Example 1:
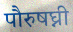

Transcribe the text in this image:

पौरुषघ्नी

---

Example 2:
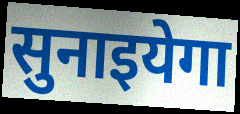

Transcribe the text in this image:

सुनाइयेगा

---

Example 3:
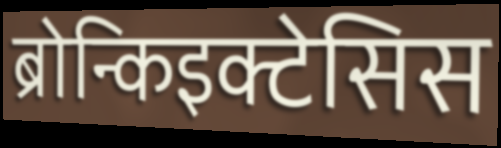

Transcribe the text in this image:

ब्रोन्किइक्टेसिस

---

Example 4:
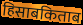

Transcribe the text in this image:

हिसाबकिताब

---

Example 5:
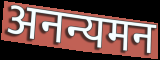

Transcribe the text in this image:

अनन्यमन